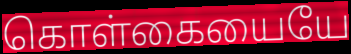
கொள்கையையே